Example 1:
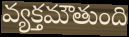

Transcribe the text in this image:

వ్యక్తమౌతుంది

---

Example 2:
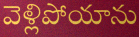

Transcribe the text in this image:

వెళ్లిపోయాను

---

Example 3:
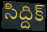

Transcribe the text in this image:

సిద్దిక్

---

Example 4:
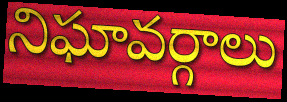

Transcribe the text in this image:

నిఘావర్గాలు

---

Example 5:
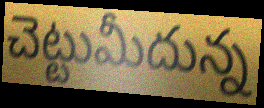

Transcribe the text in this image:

చెట్టుమీదున్న